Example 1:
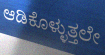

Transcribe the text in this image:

ಆಡಿಕೊಳ್ಳುತ್ತಲೇ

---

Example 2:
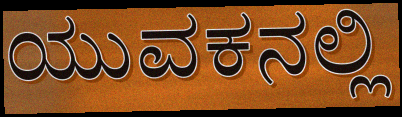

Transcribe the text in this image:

ಯುವಕನಲ್ಲಿ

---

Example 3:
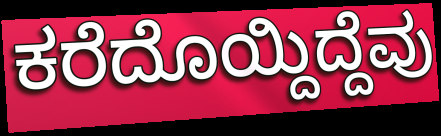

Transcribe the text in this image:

ಕರೆದೊಯ್ದಿದ್ದೆವು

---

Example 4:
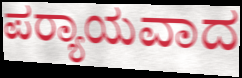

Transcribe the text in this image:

ಪರ‍್ಯಾಯವಾದ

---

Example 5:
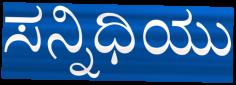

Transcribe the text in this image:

ಸನ್ನಿಧಿಯು